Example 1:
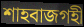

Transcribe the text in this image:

শাহবাজগহী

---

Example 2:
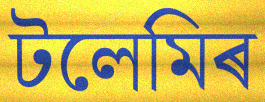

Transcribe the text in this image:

টলেমিৰ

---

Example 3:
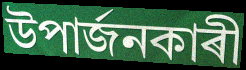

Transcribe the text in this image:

উপাৰ্জনকাৰী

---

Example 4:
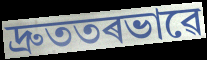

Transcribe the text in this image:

দ্ৰুততৰভাৱে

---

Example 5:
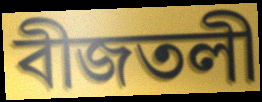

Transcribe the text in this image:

বীজতলী